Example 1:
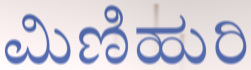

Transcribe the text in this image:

ಮಿಣಿಹುರಿ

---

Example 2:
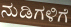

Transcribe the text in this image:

ನುಡಿಗಳಿಗೆ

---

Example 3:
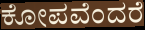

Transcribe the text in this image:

ಕೋಪವೆಂದರೆ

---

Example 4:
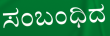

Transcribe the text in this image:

ಸಂಬಂಧಿದ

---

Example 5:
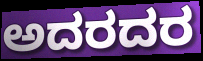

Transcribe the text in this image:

ಅದರದರ